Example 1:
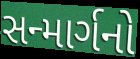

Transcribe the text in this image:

સન્માર્ગનો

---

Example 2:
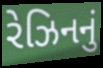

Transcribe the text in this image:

રેઝિનનું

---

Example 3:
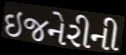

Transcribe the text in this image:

ઇજનેરીની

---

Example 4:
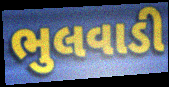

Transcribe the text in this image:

ભુલવાડી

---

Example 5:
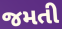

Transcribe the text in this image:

જમતી